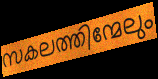
സകലത്തിന്മേലും